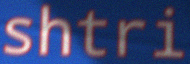
shtri